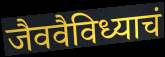
जैववैविध्याचं